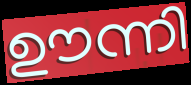
ഊന്നി